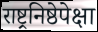
राष्ट्रनिष्ठेपेक्षा